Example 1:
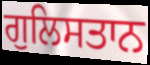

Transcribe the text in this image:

ਗੁਲਿਸਤਾਨ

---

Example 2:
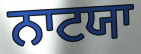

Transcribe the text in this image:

ਨਾਟਯਾ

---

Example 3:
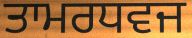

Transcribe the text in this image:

ਤਾਮਰਧਵਜ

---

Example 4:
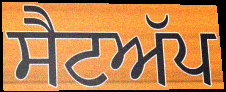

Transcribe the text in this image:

ਸੈਟਅੱਪ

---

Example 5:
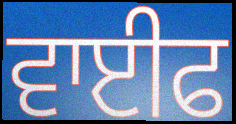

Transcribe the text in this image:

ਵਾਈਫ